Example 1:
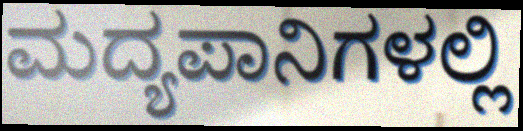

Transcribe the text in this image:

ಮದ್ಯಪಾನಿಗಳಲ್ಲಿ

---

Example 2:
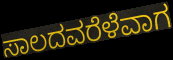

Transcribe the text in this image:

ಸಾಲದವರೆಳೆವಾಗ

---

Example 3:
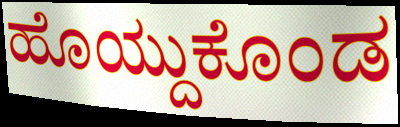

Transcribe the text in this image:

ಹೊಯ್ದುಕೊಂಡ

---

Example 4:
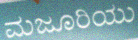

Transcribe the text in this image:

ಮಜೂರಿಯು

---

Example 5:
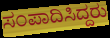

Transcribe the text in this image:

ಸಂಪಾದಿಸಿದ್ದರು